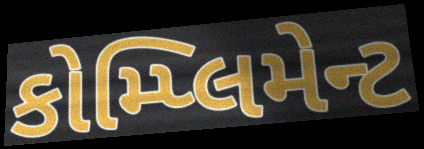
કોમ્પ્લિમેન્ટ